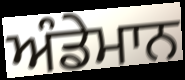
ਅੰਡੇਮਾਨ